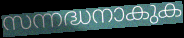
സന്നദ്ധനാകുക